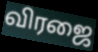
விரஜை